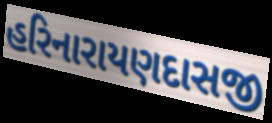
હરિનારાયણદાસજી